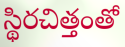
స్థిరచిత్తంతో